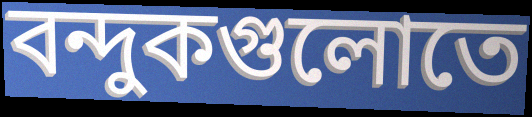
বন্দুকগুলোতে